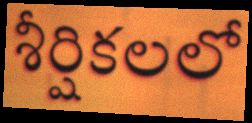
శీర్షికలలో